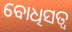
ବୋଧିସତ୍ବ